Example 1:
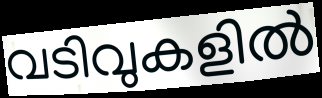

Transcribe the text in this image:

വടിവുകളിൽ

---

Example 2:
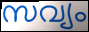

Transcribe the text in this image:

സവ്യം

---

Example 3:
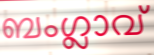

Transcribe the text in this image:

ബംഗ്ലാവ്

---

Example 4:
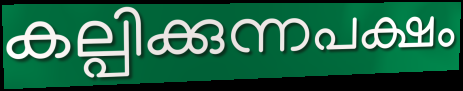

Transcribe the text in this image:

കല്പിക്കുന്നപക്ഷം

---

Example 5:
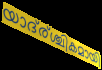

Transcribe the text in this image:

യാദ്ര്ശ്ചികമായി